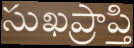
సుఖప్రాప్తి